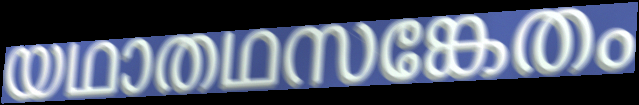
യഥാതഥസങ്കേതം